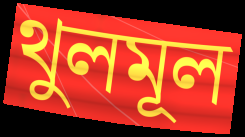
থুলমূল